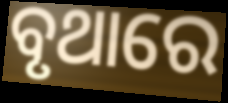
ବୃଥାରେ